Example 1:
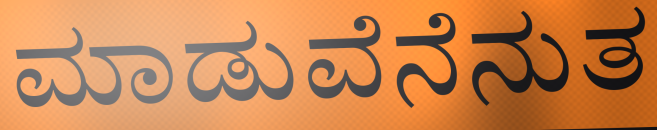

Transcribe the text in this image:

ಮಾಡುವೆನೆನುತ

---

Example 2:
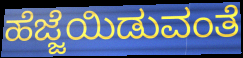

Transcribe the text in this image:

ಹೆಜ್ಜೆಯಿಡುವಂತೆ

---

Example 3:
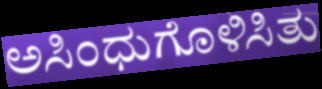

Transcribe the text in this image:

ಅಸಿಂಧುಗೊಳಿಸಿತು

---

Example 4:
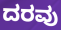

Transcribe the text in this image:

ದರವು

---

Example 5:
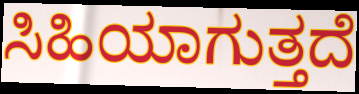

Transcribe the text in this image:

ಸಿಹಿಯಾಗುತ್ತದೆ